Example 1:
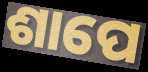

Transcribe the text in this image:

ଶାପେ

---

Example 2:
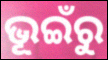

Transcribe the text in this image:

ଭୂଇଁରୁ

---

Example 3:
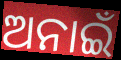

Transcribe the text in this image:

ଅନାଇଁ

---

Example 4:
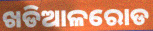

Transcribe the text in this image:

ଖଡିଆଳରୋଡ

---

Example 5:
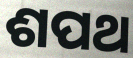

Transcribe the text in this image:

ଶପଥ